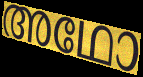
അഥോ